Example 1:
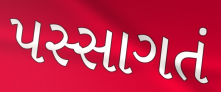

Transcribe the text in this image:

પસ્સાગતં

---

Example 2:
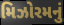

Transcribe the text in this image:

મિઝોરમનું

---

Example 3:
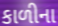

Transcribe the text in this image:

કાળીના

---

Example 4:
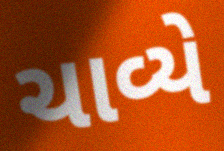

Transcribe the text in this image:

ચાવ્યે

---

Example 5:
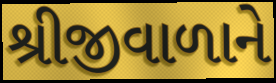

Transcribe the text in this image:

શ્રીજીવાળાને